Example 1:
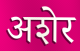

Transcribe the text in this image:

अशेर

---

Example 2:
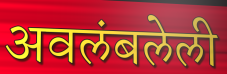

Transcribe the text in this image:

अवलंबलेली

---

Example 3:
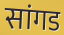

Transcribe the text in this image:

सांगड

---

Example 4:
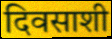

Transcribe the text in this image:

दिवसाशी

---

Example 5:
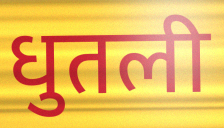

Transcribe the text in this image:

धुतली